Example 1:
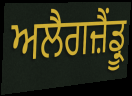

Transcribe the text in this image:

ਅਲੈਗਜ਼ੈਂਡ੍ਰੂ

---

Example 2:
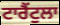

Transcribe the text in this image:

ਟਾਰੈਂਟੁਲਾ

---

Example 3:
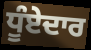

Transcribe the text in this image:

ਧੂੰਏਦਾਰ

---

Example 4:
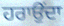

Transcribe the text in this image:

ਹਰਾਉਂਦਾ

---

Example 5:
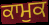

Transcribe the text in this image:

ਕਾਮੁਕ